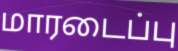
மாரடைப்பு